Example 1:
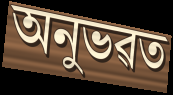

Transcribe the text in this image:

অনুভৱত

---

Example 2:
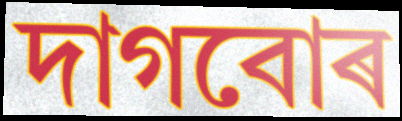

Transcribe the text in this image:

দাগবোৰ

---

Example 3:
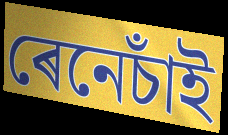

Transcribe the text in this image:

ৰেনেচাঁই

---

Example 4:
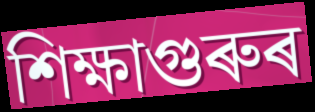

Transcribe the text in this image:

শিক্ষাগুৰুৰ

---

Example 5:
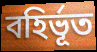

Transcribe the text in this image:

বহিৰ্ভূত